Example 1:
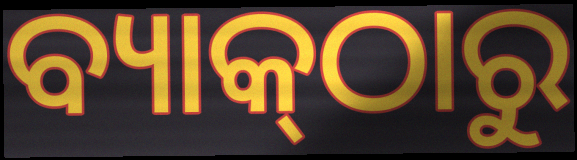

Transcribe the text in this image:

ବ୍ୟାକ୍‌ଠାରୁ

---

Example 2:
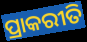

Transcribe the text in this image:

ପ୍ରାକରୀତି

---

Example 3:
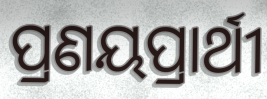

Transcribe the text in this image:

ପ୍ରଣୟପ୍ରାର୍ଥୀ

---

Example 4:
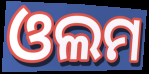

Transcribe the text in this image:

ଓଲମ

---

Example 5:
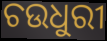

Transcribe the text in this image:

ଚଉଧୁରୀ